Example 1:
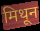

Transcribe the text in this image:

मिथून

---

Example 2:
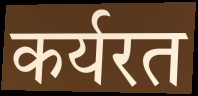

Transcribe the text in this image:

कर्यरत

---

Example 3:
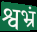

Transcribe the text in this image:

श्वभ्रं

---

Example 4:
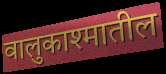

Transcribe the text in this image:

वालुकाश्मातील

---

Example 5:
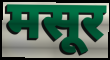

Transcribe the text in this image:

मसूर